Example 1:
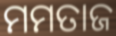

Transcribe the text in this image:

ମମତାଜ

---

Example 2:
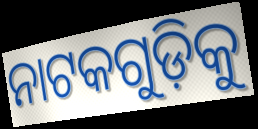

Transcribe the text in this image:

ନାଟକଗୁଡ଼ିକୁ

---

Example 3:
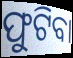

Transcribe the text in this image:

ଫୁଟିବା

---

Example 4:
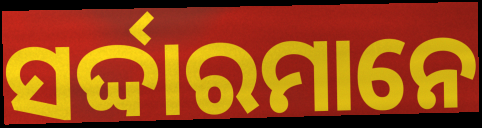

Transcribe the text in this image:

ସର୍ଦ୍ଦାରମାନେ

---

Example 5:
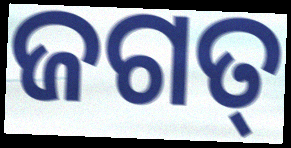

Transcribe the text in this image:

ଜଗତ୍